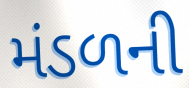
મંડળની